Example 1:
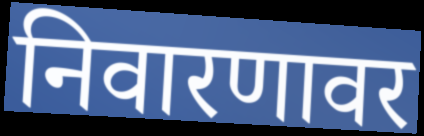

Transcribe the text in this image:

निवारणावर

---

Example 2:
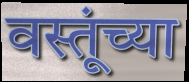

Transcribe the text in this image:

वस्तूंच्या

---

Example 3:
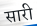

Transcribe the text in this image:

सारी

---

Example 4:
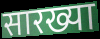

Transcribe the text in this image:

सारख्या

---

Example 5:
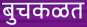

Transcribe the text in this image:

बुचकळत